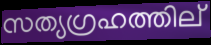
സത്യഗ്രഹത്തില്